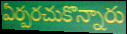
ఏర్పరచుకొన్నారు